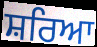
ਸ਼ਰਿਆ